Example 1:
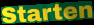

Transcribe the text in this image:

Starten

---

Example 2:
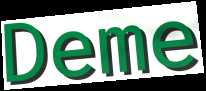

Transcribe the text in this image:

Deme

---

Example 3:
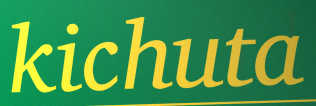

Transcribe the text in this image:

kichuta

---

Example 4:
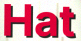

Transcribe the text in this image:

Hat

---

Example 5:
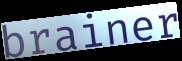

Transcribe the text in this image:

brainer